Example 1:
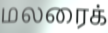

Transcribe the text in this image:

மலரைக்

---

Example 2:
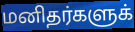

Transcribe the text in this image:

மனிதர்களுக்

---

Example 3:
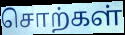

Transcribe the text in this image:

சொற்கள்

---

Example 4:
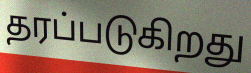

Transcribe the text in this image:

தரப்படுகிறது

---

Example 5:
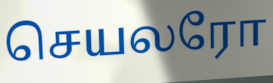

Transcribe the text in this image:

செயலரோ